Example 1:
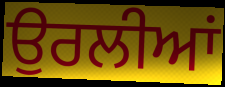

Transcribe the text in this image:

ਉਰਲੀਆਂ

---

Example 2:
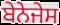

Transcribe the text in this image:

ਬੇਨੇਜੇਸ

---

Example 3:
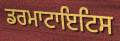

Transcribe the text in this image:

ਡਰਮਾਟਾਇਟਿਸ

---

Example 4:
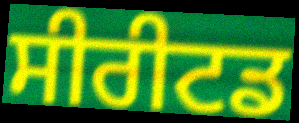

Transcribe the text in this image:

ਸੀਰੀਟਡ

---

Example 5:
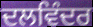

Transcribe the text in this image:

ਦਲਵਿੰਦਰ